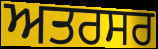
ਅਤਰਸਰ